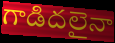
గాడిదలైనా